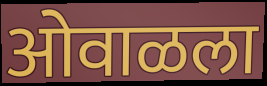
ओवाळला